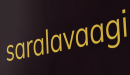
saralavaagi